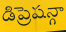
డిప్రెషన్గా